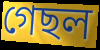
গেছল